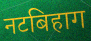
नटबिहाग